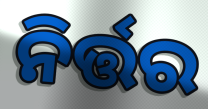
ନିର୍ତ୍ତର